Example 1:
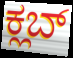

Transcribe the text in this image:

ಕ್ಲಬ್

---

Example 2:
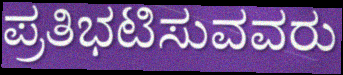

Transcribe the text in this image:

ಪ್ರತಿಭಟಿಸುವವರು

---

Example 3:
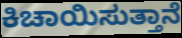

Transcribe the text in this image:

ಕಿಚಾಯಿಸುತ್ತಾನೆ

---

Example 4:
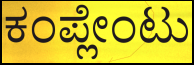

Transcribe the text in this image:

ಕಂಪ್ಲೇಂಟು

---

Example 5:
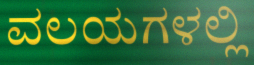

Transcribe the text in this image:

ವಲಯಗಳಲ್ಲಿ